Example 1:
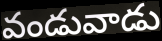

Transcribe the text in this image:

వండువాడు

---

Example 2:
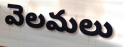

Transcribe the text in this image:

వెలమలు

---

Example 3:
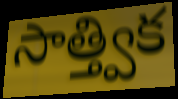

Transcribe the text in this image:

సాత్త్విక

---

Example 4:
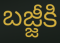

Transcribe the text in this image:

బజ్జీకి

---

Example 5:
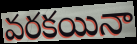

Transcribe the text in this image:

వరకయినా